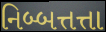
નિબ્બત્તત્તા